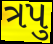
ત્રપુ